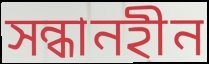
সন্ধানহীন